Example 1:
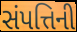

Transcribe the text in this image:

સંપત્તિની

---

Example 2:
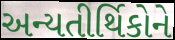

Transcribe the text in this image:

અન્યતીર્થિકોને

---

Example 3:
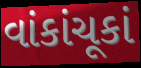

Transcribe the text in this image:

વાંકાંચૂકાં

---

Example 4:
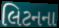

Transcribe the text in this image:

લિટનના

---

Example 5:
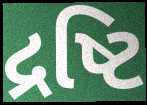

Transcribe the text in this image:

દ્રષ્ટિ